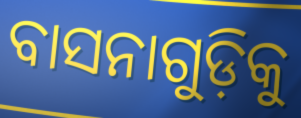
ବାସନାଗୁଡ଼ିକୁ